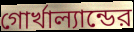
গোর্খাল্যান্ডের